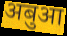
अबुआ